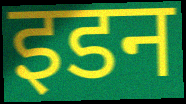
इडन